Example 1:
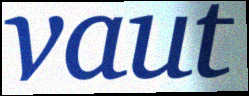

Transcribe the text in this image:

vaut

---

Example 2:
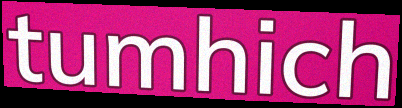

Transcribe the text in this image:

tumhich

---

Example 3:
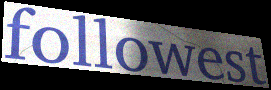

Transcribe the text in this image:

followest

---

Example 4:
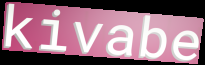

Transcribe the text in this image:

kivabe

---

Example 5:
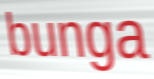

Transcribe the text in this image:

bunga